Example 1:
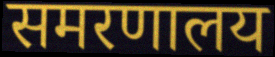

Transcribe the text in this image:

समरणालय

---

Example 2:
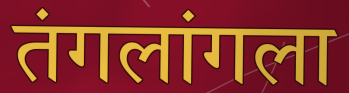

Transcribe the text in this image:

तंगलांगला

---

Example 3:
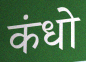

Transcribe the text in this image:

कंधो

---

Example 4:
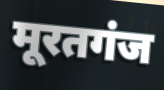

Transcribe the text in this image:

मूरतगंज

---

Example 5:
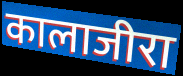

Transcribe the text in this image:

कालाजीरा